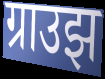
ग्राउझ